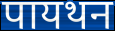
पायथन